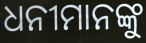
ଧନୀମାନଙ୍କୁ